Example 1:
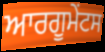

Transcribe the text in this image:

ਆਰਗੂਮੇੰਟਸ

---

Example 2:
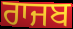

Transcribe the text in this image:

ਰਾਜਬ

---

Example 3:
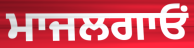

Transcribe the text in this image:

ਮਾਜਲਗਾਓਂ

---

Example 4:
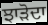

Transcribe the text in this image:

ਝਾੜੋਦਾ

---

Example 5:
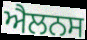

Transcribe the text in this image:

ਐਲਨਸ